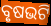
ବୃଷଭଟି